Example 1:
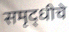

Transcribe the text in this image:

समृद्धीचे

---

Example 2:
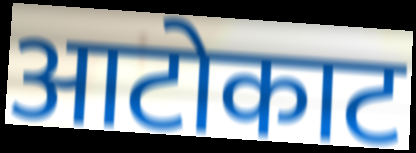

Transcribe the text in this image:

आटोकाट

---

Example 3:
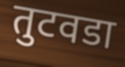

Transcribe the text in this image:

तुटवडा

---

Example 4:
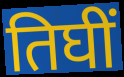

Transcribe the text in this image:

तिघीं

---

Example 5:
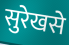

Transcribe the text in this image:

सुरेखसे